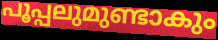
പൂപ്പലുമുണ്ടാകും